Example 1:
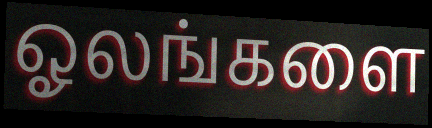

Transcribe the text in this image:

ஓலங்களை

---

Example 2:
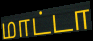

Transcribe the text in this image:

மாட்டா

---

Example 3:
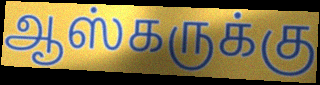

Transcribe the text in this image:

ஆஸ்கருக்கு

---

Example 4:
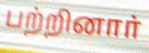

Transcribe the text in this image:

பற்றினார்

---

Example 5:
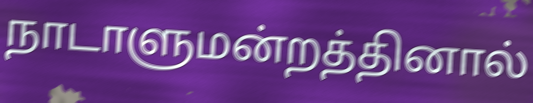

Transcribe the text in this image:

நாடாளுமன்றத்தினால்